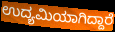
ಉದ್ಯಮಿಯಾಗಿದ್ದಾರೆ